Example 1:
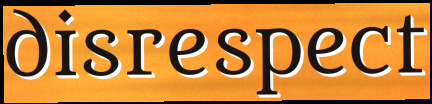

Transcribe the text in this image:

disrespect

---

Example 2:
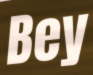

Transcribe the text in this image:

Bey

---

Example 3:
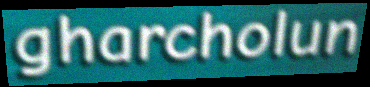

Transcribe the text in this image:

gharcholun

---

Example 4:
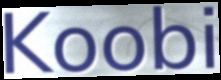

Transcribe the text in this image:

Koobi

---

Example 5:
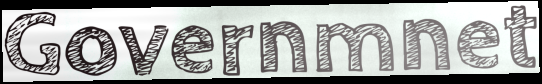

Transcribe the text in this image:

Governmnet